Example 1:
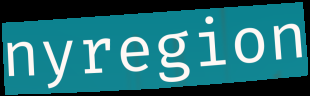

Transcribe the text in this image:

nyregion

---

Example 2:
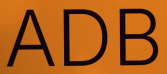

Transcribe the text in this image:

ADB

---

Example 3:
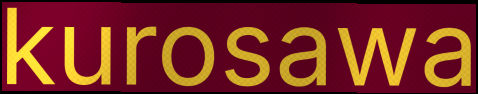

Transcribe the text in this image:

kurosawa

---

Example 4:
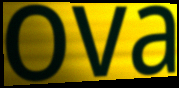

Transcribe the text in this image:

ova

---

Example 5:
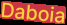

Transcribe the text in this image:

Daboia